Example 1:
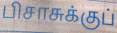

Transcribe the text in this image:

பிசாசுக்குப்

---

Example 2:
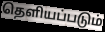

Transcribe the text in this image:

தெளியப்படும்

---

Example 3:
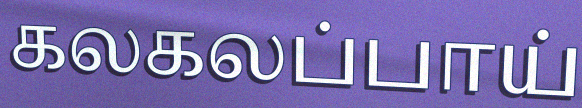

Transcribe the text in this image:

கலகலப்பாய்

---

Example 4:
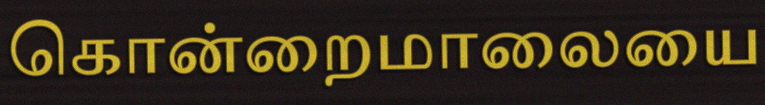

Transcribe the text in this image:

கொன்றைமாலையை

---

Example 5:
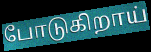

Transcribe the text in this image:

போடுகிறாய்